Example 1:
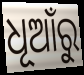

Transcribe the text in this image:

ଧୂଆଁରୁ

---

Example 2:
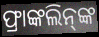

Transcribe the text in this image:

ଫ୍ରାଙ୍କଲିନ୍‌ଙ୍କ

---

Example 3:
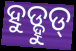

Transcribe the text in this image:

ହୁଡ୍ହୁଡ୍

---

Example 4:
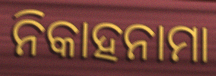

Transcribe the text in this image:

ନିକାହନାମା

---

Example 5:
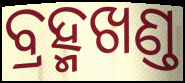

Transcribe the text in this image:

ବ୍ରହ୍ମଖଣ୍ଡ